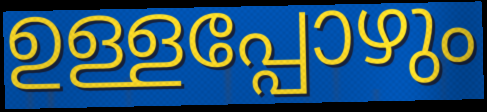
ഉള്ളപ്പോഴും